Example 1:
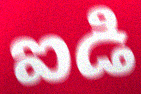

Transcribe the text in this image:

ఐడి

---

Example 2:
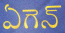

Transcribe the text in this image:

ఏగెన్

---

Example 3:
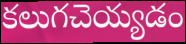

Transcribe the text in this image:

కలుగచెయ్యడం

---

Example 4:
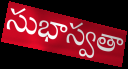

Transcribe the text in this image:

సుభాస్వతా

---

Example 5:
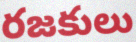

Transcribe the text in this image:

రజకులు